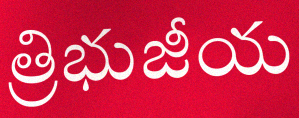
త్రిభుజీయ